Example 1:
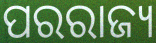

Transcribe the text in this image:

ପରରାଜ୍ୟ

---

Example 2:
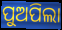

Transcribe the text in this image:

ପୁଅପିଲା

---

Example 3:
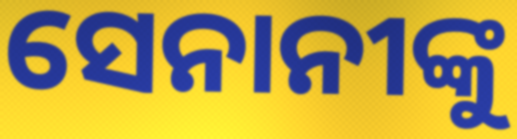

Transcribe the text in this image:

ସେନାନୀଙ୍କୁ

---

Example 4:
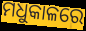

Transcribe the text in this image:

ମଧୁକାଳରେ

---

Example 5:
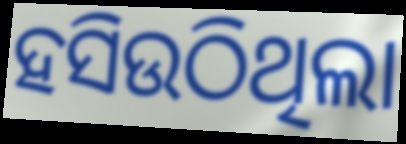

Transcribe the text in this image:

ହସିଉଠିଥିଲା